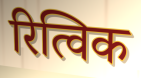
रित्विक